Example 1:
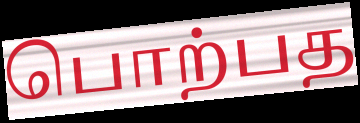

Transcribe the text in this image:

பொற்பத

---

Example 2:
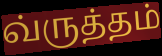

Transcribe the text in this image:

வ்ருத்தம்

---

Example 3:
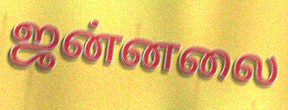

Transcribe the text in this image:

ஜன்னலை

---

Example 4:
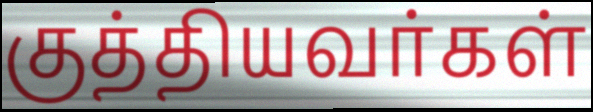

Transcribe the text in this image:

குத்தியவர்கள்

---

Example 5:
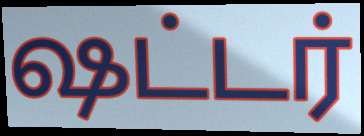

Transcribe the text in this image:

ஷட்டர்